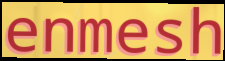
enmesh